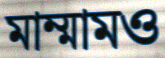
মাম্মামও